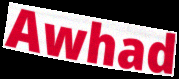
Awhad